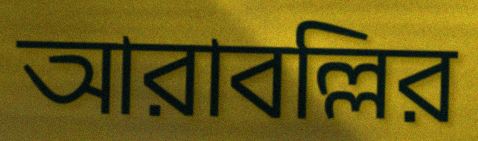
আরাবল্লির